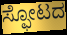
ಸ್ಫೋಟದ